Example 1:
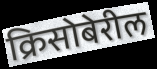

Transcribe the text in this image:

क्रिसोबेरील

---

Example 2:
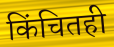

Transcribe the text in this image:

किंचितही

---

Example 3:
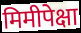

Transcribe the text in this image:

मिमीपेक्षा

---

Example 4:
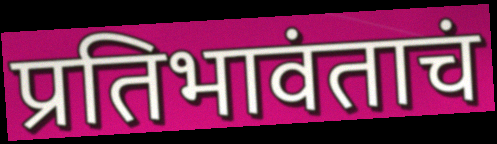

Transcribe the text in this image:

प्रतिभावंताचं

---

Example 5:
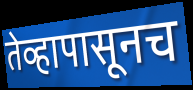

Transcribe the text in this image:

तेव्हापासूनच